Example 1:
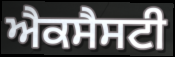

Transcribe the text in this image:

ਐਕਸੈਸਟੀ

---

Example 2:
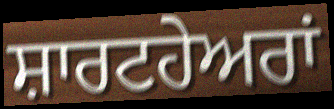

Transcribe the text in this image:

ਸ਼ਾਰਟਹੇਅਰਾਂ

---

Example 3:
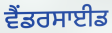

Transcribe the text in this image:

ਵੈਂਡਰਸਾਈਡ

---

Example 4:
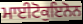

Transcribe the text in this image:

ਮਾਈਟੋਕੁਇਨੋਨ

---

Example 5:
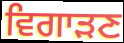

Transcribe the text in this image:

ਵਿਗਾੜਣ